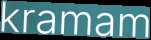
kramam